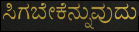
ಸಿಗಬೇಕೆನ್ನುವುದು